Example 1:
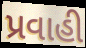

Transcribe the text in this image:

પ્રવાહી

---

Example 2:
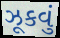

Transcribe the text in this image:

ઝૂકવું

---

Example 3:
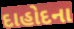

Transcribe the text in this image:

દાહોદના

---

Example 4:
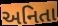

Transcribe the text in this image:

અનિતા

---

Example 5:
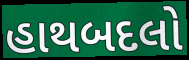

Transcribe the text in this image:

હાથબદલો